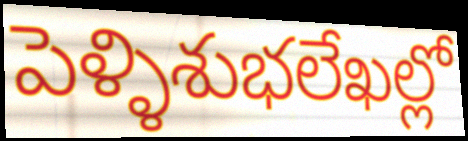
పెళ్ళిశుభలేఖల్లో